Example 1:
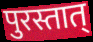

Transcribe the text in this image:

पुरस्तात्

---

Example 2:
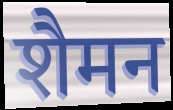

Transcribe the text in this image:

शैमन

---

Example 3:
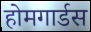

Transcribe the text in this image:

होमगार्डस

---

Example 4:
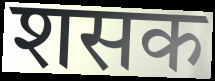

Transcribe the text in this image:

शसक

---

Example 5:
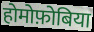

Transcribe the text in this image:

होमोफ़ोबिया